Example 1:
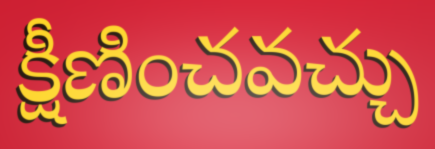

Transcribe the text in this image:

క్షీణించవచ్చు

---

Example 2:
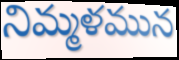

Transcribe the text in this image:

నిమ్మళమున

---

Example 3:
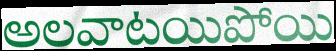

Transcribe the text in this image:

అలవాటయిపోయి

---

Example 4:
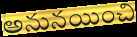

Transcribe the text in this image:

అనునయించి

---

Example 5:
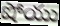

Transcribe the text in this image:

షోయు